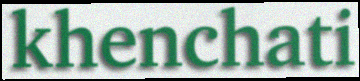
khenchati